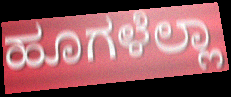
ಹೂಗಳೆಲ್ಲಾ